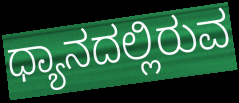
ಧ್ಯಾನದಲ್ಲಿರುವ